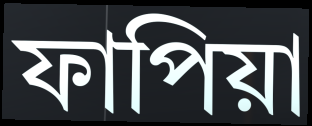
ফাপিয়া